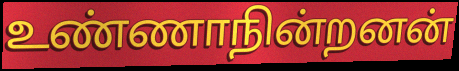
உண்ணாநின்றனன்